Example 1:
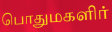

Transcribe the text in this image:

பொதுமகளிர்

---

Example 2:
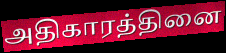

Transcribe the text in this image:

அதிகாரத்தினை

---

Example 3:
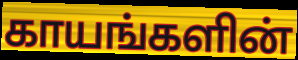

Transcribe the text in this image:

காயங்களின்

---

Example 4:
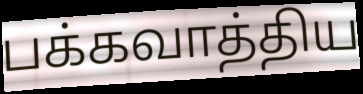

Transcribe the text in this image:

பக்கவாத்திய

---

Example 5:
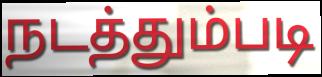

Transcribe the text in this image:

நடத்தும்படி